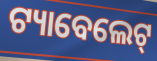
ଟ୍ୟାବେଲେଟ୍